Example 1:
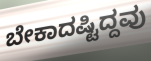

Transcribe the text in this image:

ಬೇಕಾದಷ್ಟಿದ್ದವು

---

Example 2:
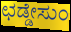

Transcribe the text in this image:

ಛಡ್ಡೇಸುಂ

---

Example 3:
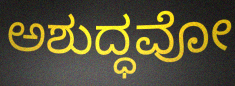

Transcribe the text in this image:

ಅಶುದ್ಧವೋ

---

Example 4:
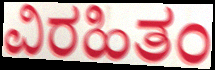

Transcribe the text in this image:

ವಿರಹಿತಂ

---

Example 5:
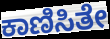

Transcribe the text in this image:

ಕಾಣಿಸಿತೇ